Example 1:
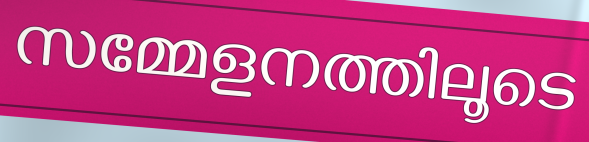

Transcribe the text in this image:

സമ്മേളനത്തിലൂടെ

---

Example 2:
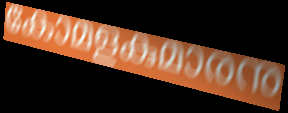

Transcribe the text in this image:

കോമളകുമാരനു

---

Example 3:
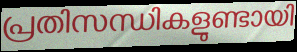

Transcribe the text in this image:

പ്രതിസന്ധികളുണ്ടായി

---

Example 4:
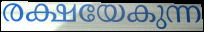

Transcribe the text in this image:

രക്ഷയേകുന്ന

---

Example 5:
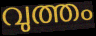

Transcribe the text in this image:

വുത്തം